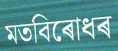
মতবিৰোধৰ